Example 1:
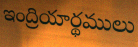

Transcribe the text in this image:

ఇంద్రియార్థములు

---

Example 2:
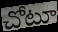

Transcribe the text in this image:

చోటూ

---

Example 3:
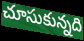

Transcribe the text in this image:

చూసుకున్నది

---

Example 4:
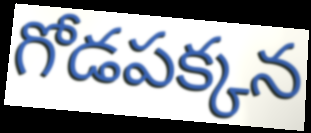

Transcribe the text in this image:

గోడపక్కన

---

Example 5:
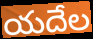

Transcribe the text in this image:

యదేల